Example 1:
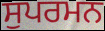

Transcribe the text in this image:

ਸੁਪਰਮਨ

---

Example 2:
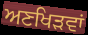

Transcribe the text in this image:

ਅਣਖਿੜਵਾਂ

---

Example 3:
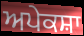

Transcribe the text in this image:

ਅਪੇਕਸ਼ਾ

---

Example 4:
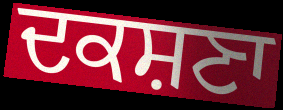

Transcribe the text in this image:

ਦਕਸ਼ਣਾ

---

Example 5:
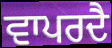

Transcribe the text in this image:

ਵਾਪਰਦੈ